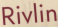
Rivlin